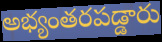
అభ్యంతరపడ్డారు